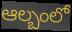
ఆల్బంలో